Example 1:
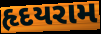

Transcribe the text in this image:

હૃદયરામ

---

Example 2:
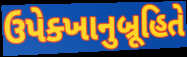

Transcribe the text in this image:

ઉપેક્ખાનુબ્રૂહિતે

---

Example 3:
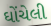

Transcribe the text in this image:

ઘોંચેલી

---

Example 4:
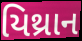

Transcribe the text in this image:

યિથ્રાન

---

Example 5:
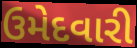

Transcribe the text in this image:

ઉમેદવારી